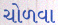
ચોળવા